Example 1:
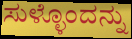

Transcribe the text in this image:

ಸುಳ್ಳೊಂದನ್ನು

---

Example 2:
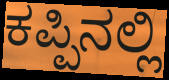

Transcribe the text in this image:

ಕಪ್ಪಿನಲ್ಲಿ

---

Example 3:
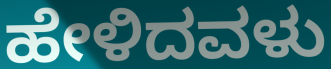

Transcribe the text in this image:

ಹೇಳಿದವಳು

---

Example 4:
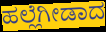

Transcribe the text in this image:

ಹಲ್ಲೆಗೀಡಾದ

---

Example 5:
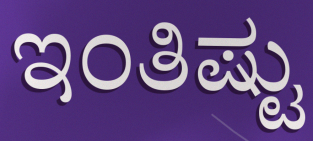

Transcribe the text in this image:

ಇಂತಿಷ್ಟು